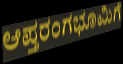
ಆಪ್ತರಂಗಭೂಮಿಗೆ